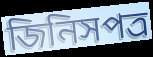
জিনিসপত্র